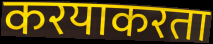
करयाकरता